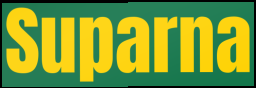
Suparna